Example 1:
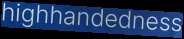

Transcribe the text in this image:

highhandedness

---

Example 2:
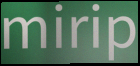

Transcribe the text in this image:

mirip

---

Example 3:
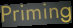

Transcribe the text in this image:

Priming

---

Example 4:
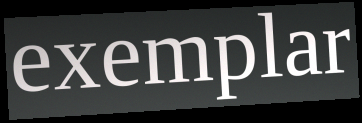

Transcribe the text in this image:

exemplar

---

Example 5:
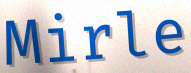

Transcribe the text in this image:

Mirle